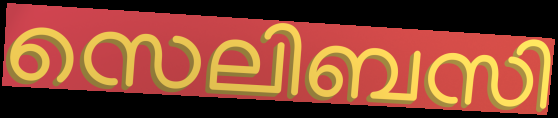
സെലിബസി